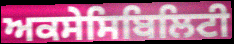
ਅਕਸੇਸਿਬਿਲਿਟੀ